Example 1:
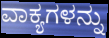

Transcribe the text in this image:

ವಾಕ್ಯಗಳನ್ನು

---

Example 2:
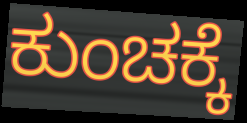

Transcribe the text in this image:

ಕುಂಚಕ್ಕೆ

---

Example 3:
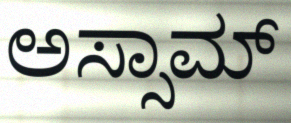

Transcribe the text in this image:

ಅಸ್ಸಾಮ್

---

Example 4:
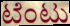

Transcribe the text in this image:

ಟೆಂಟು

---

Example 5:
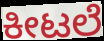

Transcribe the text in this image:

ಕೀಟಲೆ